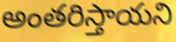
అంతరిస్తాయని